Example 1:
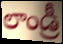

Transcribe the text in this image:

లాండ్రీ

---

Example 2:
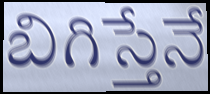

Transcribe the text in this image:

బిగిస్తేనే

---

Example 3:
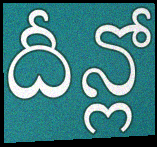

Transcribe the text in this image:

దీన్లో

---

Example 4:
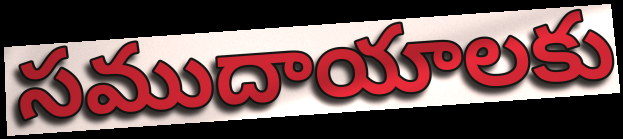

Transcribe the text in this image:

సముదాయాలకు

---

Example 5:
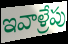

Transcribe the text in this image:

ఇవాళ్రేపు